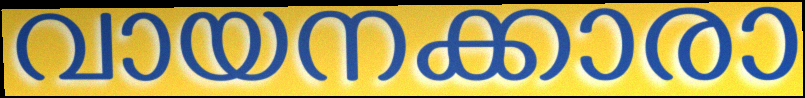
വായനക്കാരാ